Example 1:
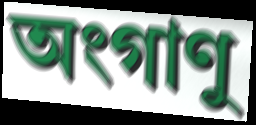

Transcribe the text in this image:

অংগাণু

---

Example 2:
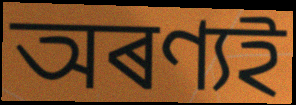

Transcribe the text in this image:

অৰণ্যই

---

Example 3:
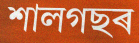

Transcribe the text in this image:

শালগছৰ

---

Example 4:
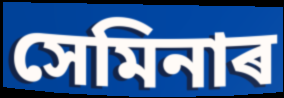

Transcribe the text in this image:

সেমিনাৰ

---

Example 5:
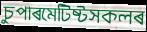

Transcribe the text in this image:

চুপাৰমেটিষ্টসকলৰ